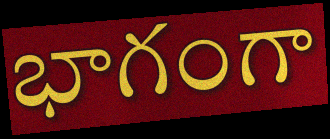
భాగంగా